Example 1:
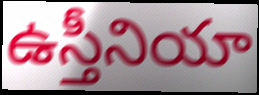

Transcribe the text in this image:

ఉస్తీనియా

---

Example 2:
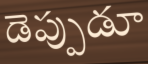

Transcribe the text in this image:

డెప్పుడూ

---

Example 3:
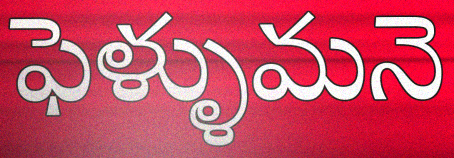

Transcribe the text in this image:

ఫెళ్ళుమనె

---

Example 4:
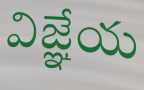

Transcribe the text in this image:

విజ్ఞేయ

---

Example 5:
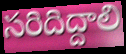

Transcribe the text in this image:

సరిదిద్దాలి